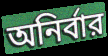
অনির্বার